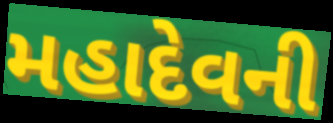
મહાદેવની